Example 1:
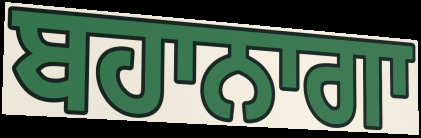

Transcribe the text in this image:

ਬਹਾਨਾਗਾ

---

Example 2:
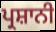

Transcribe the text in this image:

ਪ੍ਰਸ਼ਾਨੀ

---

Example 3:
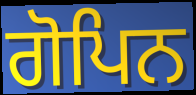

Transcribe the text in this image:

ਗੋਪਿਨ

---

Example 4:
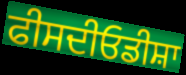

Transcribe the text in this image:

ਫੀਸਦੀਓਡੀਸ਼ਾ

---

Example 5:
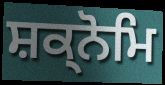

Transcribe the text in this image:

ਸ਼ਕ੍ਨੋਮਿ